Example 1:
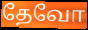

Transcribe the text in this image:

தேவோ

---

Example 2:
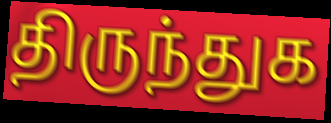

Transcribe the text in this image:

திருந்துக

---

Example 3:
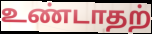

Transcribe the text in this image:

உண்டாதற்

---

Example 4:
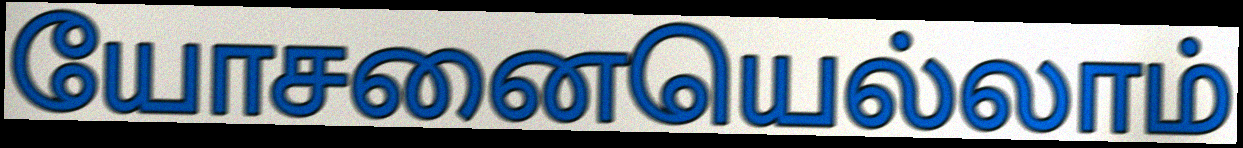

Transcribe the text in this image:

யோசனையெல்லாம்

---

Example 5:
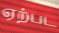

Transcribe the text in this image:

ஏற்பட